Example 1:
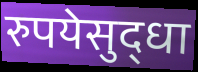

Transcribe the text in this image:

रुपयेसुद्धा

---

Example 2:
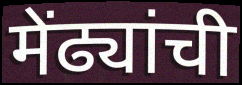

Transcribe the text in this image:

मेंढ्यांची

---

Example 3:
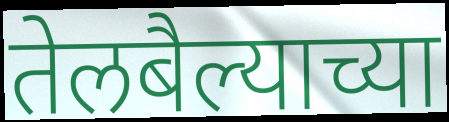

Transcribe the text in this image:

तेलबैल्याच्या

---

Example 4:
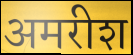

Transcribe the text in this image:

अमरीश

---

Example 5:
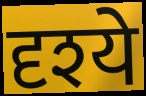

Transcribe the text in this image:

दृश्‍ये